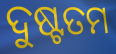
ଦୁଷ୍ଟତମ